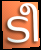
ടീ